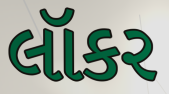
લૉકર